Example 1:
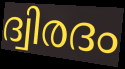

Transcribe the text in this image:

ദ്വിരദം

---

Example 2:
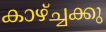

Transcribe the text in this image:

കാഴ്ച്ചക്കു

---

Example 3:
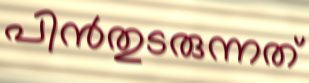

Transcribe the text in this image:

പിൻതുടരുന്നത്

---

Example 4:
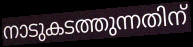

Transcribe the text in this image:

നാടുകടത്തുന്നതിന്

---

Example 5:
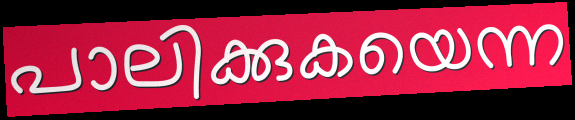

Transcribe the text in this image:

പാലിക്കുകയെന്ന